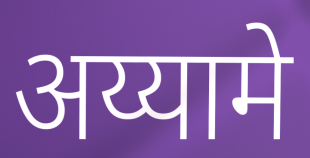
अय्यामे